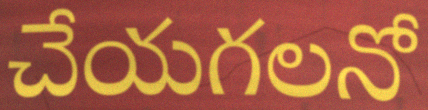
చేయగలనో